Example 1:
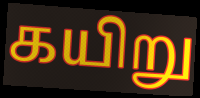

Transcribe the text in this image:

கயிறு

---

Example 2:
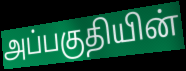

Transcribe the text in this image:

அப்பகுதியின்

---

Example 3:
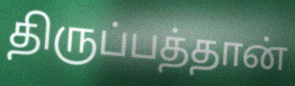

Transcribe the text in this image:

திருப்பத்தான்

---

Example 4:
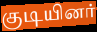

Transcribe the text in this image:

குடியினர்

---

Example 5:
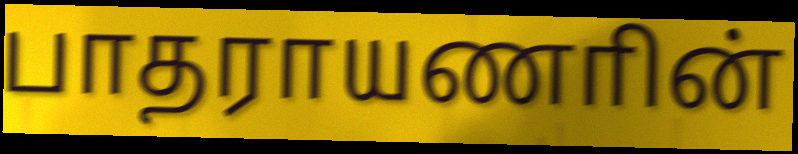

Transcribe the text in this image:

பாதராயணரின்